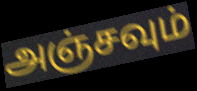
அஞ்சவும்